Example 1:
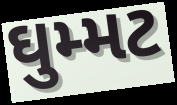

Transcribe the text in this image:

ઘુમ્મટ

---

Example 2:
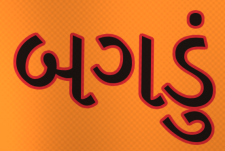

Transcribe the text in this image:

બગડું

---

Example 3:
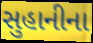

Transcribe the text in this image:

સુહાનીના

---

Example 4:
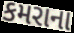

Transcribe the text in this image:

કમરાના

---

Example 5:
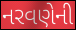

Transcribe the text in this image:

નરવણેની